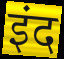
इंद